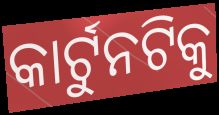
କାର୍ଟୁନଟିକୁ